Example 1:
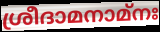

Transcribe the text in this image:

ശ്രീദാമനാമ്നഃ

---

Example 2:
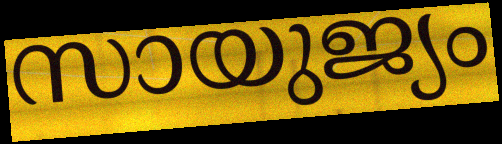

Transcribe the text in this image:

സായുജ്യം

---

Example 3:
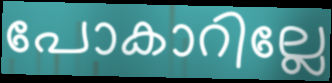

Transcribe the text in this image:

പോകാറില്ലേ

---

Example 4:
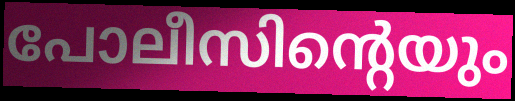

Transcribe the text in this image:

പോലീസിന്റെയും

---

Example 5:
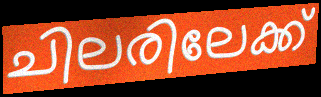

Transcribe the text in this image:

ചിലരിലേക്ക്